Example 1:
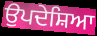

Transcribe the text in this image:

ਉਪਦੇਸ਼ਿਆ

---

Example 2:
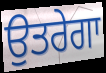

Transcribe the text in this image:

ਉਤਰੇਗਾ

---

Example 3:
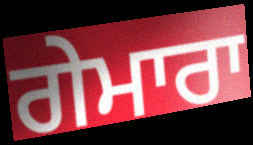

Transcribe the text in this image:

ਗੇਮਾਰਾ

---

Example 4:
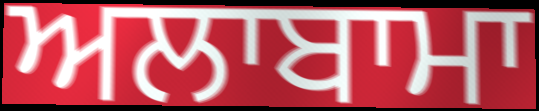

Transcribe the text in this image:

ਅਲਾਬਾਮਾ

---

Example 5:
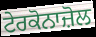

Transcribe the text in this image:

ਟੇਰਕੋਨਾਜ਼ੋਲ